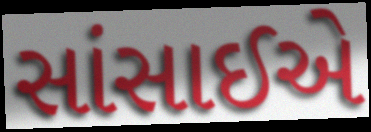
સાંસાઈએ